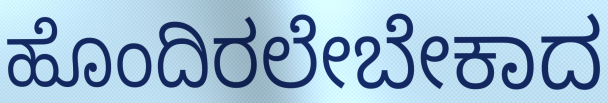
ಹೊಂದಿರಲೇಬೇಕಾದ